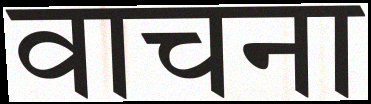
वाचना